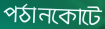
পঠানকোটে